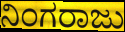
ನಿಂಗರಾಜು